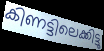
കിണട്ടിലെക്കിട്ടു